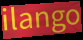
ilango